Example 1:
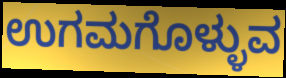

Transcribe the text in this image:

ಉಗಮಗೊಳ್ಳುವ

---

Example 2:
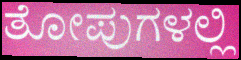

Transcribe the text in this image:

ತೋಪುಗಳಲ್ಲಿ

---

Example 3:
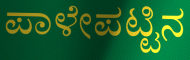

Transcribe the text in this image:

ಪಾಳೇಪಟ್ಟಿನ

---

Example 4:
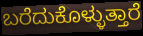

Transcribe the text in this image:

ಬರೆದುಕೊಳ್ಳುತ್ತಾರೆ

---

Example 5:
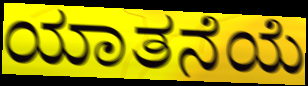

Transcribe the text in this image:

ಯಾತನೆಯೆ